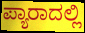
ಪ್ಯಾರಾದಲ್ಲಿ